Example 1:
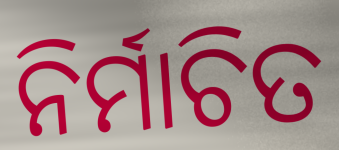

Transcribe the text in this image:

ନିର୍ମାଚିତ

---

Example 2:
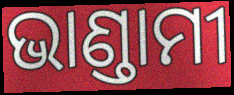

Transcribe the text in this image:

ଭାଣ୍ଡାମୀ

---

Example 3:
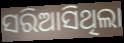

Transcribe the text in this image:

ସରିଆସିଥିଲା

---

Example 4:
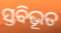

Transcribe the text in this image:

ସ୍ତବିଭୂତ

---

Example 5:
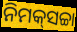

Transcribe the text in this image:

ନିମକ୍‍ସଚ୍ଚା